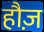
हौज़